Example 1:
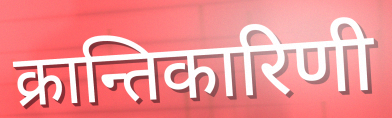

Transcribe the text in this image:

क्रान्तिकारिणी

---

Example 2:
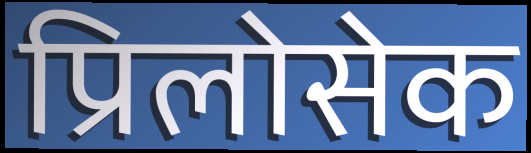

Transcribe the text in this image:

प्रिलोसेक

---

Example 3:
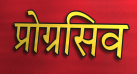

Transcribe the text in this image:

प्रोग्रसिव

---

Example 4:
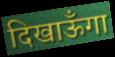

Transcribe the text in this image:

दिखाऊँगा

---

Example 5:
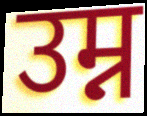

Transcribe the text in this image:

उम्न